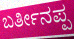
ಬರ್ತೀನಪ್ಪ